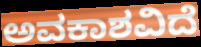
ಅವಕಾಶವಿದೆ